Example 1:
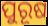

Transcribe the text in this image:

ପୁରୂଷ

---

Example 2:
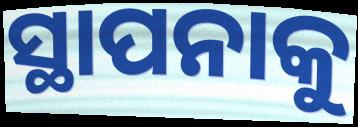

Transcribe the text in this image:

ସ୍ଥାପନାକୁ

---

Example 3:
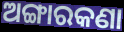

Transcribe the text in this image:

ଅଙ୍ଗାରକଣା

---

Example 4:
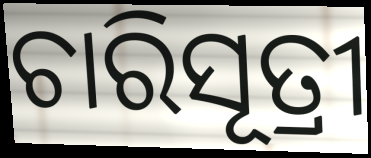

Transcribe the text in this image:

ଚାରିସୂତ୍ରୀ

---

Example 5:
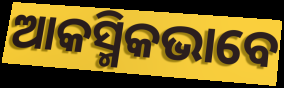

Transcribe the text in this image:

ଆକସ୍ମିକଭାବେ